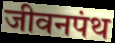
जीवनपंथ